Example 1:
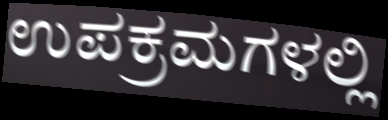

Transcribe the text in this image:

ಉಪಕ್ರಮಗಳಲ್ಲಿ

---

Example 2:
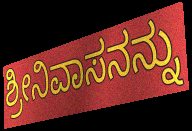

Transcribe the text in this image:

ಶ್ರೀನಿವಾಸನನ್ನು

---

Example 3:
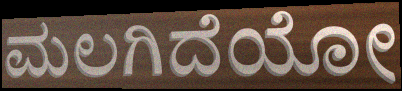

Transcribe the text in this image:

ಮಲಗಿದೆಯೋ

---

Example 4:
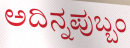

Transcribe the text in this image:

ಅದಿನ್ನಪುಬ್ಬಂ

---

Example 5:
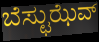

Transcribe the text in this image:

ಬೆಸ್ಟುಝೆವ್